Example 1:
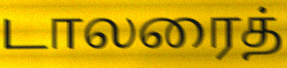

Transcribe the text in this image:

டாலரைத்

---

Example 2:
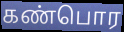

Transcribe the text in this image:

கண்பொர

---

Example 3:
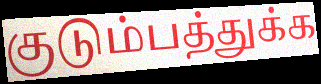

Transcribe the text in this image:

குடும்பத்துக்க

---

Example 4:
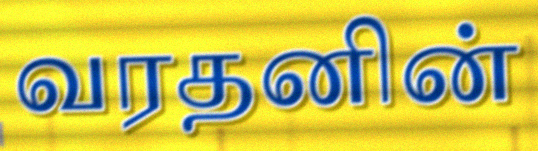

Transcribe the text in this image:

வரதனின்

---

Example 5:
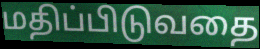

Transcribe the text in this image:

மதிப்பிடுவதை